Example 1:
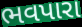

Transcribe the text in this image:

ભવપારા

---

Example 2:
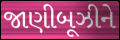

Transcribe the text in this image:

જાણીબૂઝીને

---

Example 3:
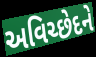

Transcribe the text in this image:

અવિચ્છેદને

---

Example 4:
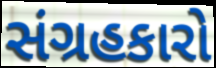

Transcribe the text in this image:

સંગ્રહકારો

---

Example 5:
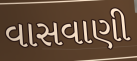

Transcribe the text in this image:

વાસવાણી